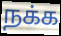
நக்க